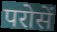
परोसें